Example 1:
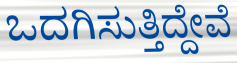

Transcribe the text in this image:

ಒದಗಿಸುತ್ತಿದ್ದೇವೆ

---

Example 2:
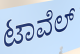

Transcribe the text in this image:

ಟಾವೆಲ್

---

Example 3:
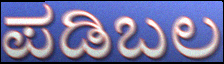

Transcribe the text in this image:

ಪಡಿಬಲ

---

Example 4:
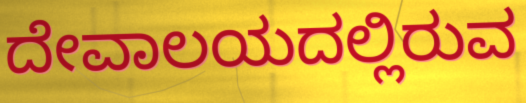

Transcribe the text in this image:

ದೇವಾಲಯದಲ್ಲಿರುವ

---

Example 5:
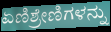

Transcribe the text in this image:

ಏಣಿಶ್ರೇಣಿಗಳನ್ನು